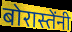
बोरास्तेंनी